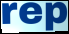
rep